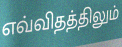
எவ்விதத்திலும்